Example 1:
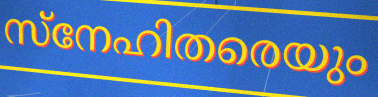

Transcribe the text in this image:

സ്നേഹിതരെയും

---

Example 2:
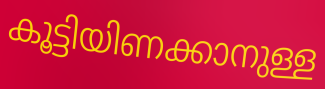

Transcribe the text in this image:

കൂട്ടിയിണക്കാനുള്ള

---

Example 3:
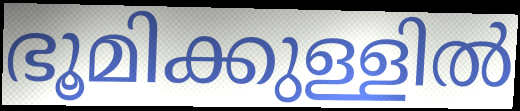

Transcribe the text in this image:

ഭൂമിക്കുള്ളിൽ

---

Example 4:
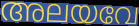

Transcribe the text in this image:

അലയവേ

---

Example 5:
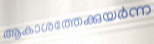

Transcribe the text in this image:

ആകാശത്തേക്കുയർന്ന